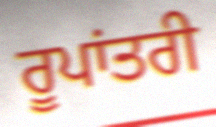
ਰੂਪਾਂਤਰੀ